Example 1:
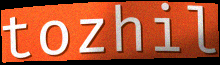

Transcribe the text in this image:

tozhil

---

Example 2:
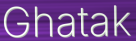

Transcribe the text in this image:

Ghatak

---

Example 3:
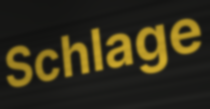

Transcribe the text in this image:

Schlage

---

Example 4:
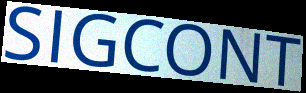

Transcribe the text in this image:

SIGCONT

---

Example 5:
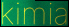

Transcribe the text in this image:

kimia